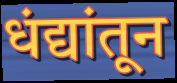
धंद्यांतून